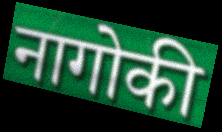
नागोकी